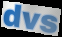
dvs